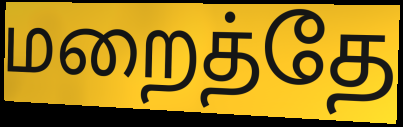
மறைத்தே